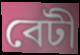
বেটী